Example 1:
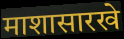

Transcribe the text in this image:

माशासारखे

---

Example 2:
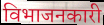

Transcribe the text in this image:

विभाजनकारी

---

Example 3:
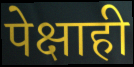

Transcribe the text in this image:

पेक्षाही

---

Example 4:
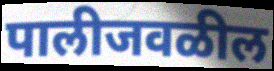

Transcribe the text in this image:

पालीजवळील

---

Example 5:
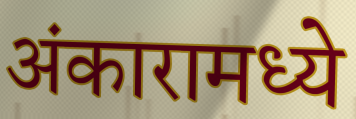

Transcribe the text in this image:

अंकारामध्ये